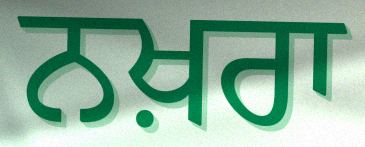
ਨਖ਼ਰਾ